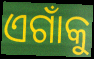
ଏଗାଁକୁ